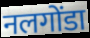
नलगोंडा